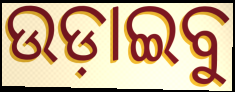
ଉଡ଼ାଇବୁ